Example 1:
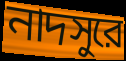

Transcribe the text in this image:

নাদসুরে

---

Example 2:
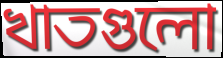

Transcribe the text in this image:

খাতগুলো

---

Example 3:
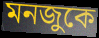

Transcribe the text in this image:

মনজুকে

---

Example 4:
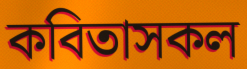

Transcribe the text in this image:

কবিতাসকল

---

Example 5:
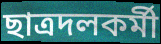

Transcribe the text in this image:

ছাত্রদলকর্মী